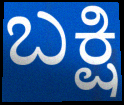
ಬಕ್ಷಿ